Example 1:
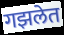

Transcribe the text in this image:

गझलेत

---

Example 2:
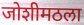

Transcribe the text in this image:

जोशीमठला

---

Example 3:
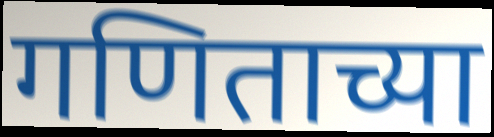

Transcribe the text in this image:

गणिताच्या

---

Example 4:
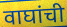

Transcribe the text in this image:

वाघांची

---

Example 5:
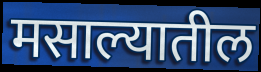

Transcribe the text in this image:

मसाल्यातील